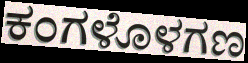
ಕಂಗಳೊಳಗಣ